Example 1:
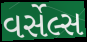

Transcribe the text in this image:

વર્સેલ્સ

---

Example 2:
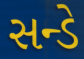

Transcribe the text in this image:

સન્ડે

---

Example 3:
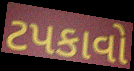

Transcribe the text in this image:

ટપકાવો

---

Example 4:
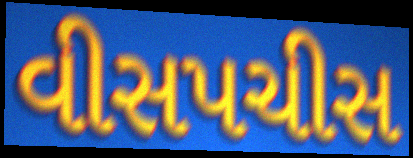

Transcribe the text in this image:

વીસપચીસ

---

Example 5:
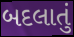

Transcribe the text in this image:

બદલાતું